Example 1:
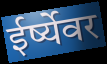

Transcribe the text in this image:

ईर्ष्येवर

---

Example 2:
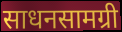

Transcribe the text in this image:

साधनसामग्री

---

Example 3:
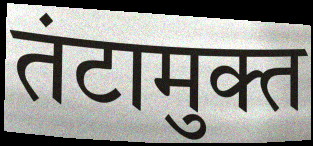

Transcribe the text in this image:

तंटामुक्त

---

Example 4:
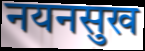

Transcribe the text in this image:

नयनसुख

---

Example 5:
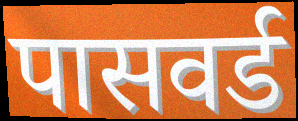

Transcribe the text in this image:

पासवर्ड